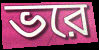
ভরে